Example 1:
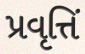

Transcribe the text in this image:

પ્રવૃત્તિં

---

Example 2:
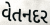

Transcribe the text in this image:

વેતનદર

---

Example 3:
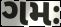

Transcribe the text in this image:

ગમઃ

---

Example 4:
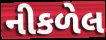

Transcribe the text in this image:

નીકળેલ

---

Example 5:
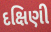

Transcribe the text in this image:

દક્ષિણી